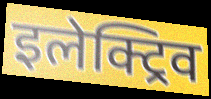
इलेक्ट्रिव